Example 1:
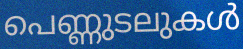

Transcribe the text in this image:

പെണ്ണുടലുകൾ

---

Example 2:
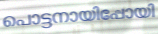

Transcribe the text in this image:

പൊട്ടനായിപ്പോയി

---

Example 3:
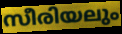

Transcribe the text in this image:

സീരിയലും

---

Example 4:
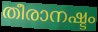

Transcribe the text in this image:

തീരാനഷ്ടം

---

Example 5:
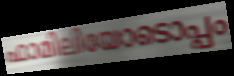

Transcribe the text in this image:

ഫാമിലിയോടൊപ്പം